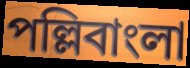
পল্লিবাংলা